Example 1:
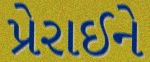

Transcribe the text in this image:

પ્રેરાઈને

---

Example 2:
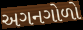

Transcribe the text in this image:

અગનગોળો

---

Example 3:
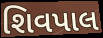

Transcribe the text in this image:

શિવપાલ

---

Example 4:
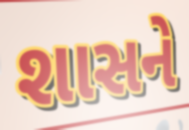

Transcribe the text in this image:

શાસને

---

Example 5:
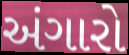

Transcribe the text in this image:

અંગારો